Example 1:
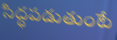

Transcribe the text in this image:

సిద్ధపడుతుంటే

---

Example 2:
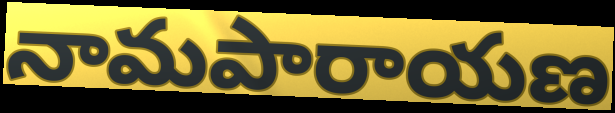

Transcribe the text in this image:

నామపారాయణ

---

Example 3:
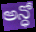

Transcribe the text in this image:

అన్ధో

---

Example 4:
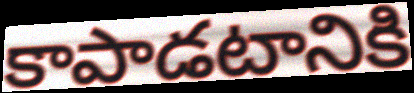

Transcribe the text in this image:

కాపాడటానికి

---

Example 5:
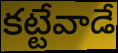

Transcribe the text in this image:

కట్టేవాడే